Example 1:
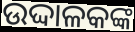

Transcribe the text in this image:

ଉଦ୍ଦାଳକଙ୍କ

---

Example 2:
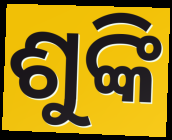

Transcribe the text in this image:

ଶୁଙ୍କି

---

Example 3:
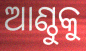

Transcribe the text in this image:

ଆଣ୍ଠୁକୁ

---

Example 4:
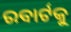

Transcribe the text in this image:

ରବାର୍ଟକୁ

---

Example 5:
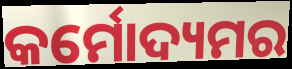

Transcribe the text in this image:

କର୍ମୋଦ୍ୟମର